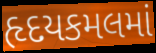
હૃદયકમલમાં